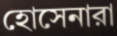
হোসেনারা